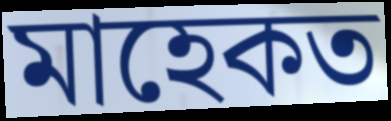
মাহেকত